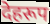
देहरूप